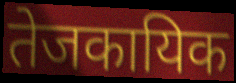
तेजकायिक